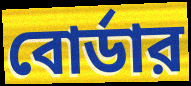
বোর্ডার